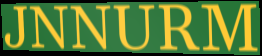
JNNURM